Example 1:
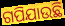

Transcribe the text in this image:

ଗପିଯାଉଛି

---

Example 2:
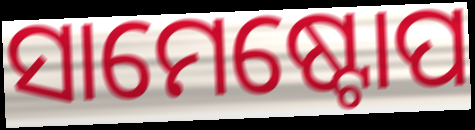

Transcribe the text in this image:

ସାମେଷ୍ଟୋପ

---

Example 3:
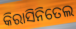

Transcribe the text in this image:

କିରାସିନିତେଲ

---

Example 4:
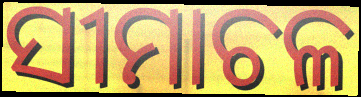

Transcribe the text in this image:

ସୀମାଚଳ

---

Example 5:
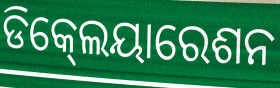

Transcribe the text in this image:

ଡିକ୍‍ଲେୟାରେଶନ